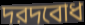
দরদবোধ